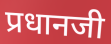
प्रधानजी